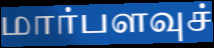
மார்பளவுச்